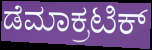
ಡೆಮಾಕ್ರಟಿಕ್